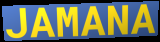
JAMANA